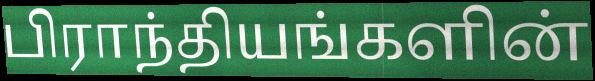
பிராந்தியங்களின்